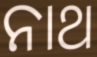
ନାଥ